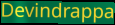
Devindrappa